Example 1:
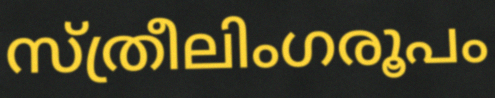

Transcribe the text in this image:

സ്ത്രീലിംഗരൂപം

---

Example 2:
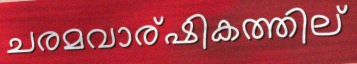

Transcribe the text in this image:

ചരമവാര്ഷികത്തില്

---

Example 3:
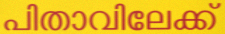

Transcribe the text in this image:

പിതാവിലേക്ക്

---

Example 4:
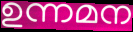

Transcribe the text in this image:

ഉന്നമന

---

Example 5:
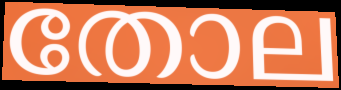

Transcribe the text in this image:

തോല